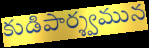
కుడిపార్శ్వమున